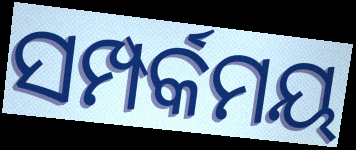
ସମ୍ପର୍କମୟ